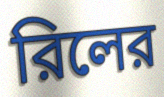
রিলের